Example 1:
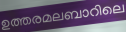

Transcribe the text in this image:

ഉത്തരമലബാറിലെ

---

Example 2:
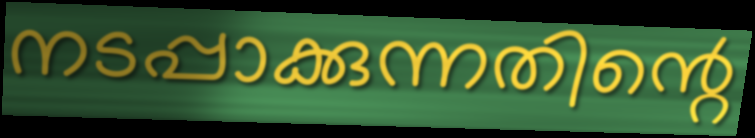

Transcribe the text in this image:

നടപ്പാക്കുന്നതിന്റെ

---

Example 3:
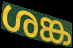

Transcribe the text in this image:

ശങ്ക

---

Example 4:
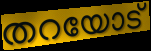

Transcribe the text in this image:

തറയോട്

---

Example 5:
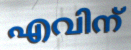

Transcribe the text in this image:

എവിന്